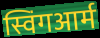
स्विंगआर्म